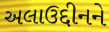
અલાઉદ્દીનને